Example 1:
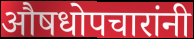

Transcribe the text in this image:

औषधोपचारांनी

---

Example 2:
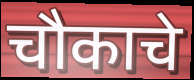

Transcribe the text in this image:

चौकाचे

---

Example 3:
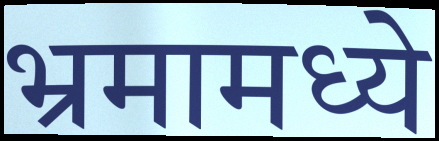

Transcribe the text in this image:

भ्रमामध्ये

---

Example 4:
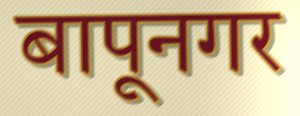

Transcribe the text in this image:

बापूनगर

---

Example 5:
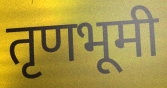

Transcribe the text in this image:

तृणभूमी